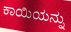
ಕಾಯಿಯನ್ನು